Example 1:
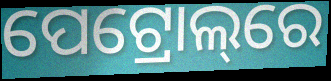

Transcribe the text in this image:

ପେଟ୍ରୋଲ୍‌ରେ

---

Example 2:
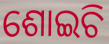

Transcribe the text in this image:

ଶୋଇଚି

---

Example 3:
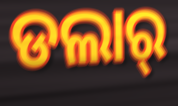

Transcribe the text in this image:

ଡଲାର୍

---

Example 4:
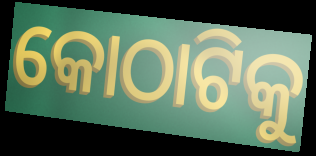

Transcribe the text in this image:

କୋଠାଟିକୁ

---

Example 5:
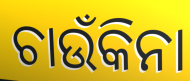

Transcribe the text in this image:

ଚାଉଁକିନା